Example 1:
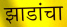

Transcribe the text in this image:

झाडांचा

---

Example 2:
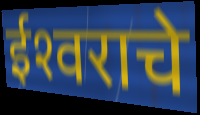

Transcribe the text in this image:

ईश्वराचे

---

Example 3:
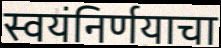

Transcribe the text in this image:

स्वयंनिर्णयाचा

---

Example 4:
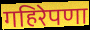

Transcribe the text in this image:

गहिरेपणा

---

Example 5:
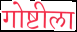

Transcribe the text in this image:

गोष्टीला